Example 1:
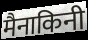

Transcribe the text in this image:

मैनाकिनी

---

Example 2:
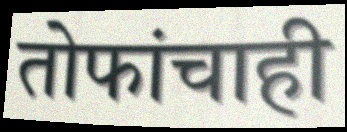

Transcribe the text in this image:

तोफांचाही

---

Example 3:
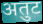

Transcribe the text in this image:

अतुट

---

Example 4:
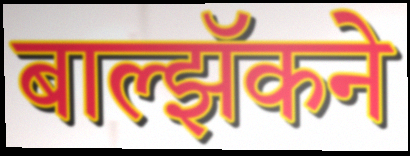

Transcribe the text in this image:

बाल्झॅकने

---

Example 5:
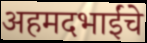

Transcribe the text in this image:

अहमदभाईंचे